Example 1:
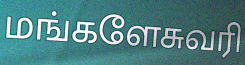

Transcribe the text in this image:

மங்களேசுவரி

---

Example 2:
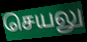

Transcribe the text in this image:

செயலு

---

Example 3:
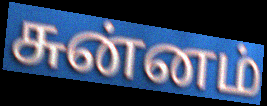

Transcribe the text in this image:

சுன்னம்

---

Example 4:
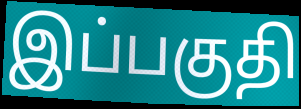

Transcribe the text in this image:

இப்பகுதி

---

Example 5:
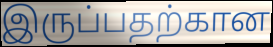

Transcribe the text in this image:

இருப்பதற்கான